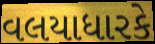
વલયાધારકે